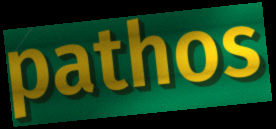
pathos